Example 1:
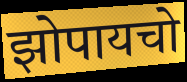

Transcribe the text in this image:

झोपायचो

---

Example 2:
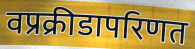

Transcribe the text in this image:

वप्रक्रीडापरिणत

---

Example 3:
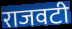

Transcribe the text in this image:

राजवटी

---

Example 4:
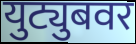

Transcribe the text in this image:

युट्युबवर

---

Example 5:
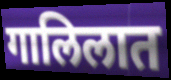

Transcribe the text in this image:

गालिलात